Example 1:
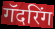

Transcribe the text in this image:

गॅदरिंग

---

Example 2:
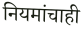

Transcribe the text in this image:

नियमांचाही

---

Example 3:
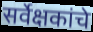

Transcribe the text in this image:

सर्वेक्षकांचे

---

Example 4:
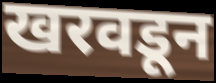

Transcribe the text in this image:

खरवडून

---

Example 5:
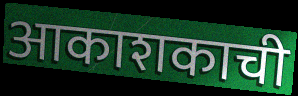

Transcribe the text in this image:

आकाशकाची